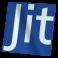
Jit